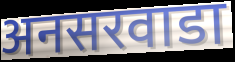
अनसरवाडा